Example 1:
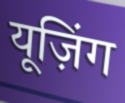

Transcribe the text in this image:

यूज़िंग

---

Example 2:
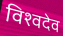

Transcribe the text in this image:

विश्वदेव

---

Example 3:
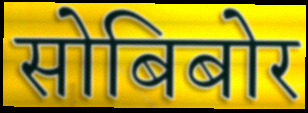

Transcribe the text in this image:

सोबिबोर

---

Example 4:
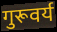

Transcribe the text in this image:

गुरूवर्य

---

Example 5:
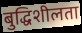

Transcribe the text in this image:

बुद्धिशीलता